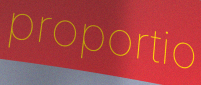
proportio